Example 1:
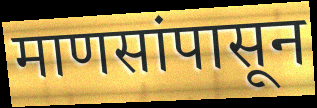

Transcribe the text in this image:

माणसांपासून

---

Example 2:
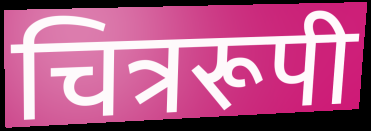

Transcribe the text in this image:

चित्ररूपी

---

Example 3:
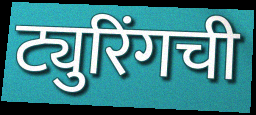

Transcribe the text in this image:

ट्युरिंगची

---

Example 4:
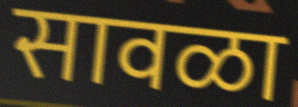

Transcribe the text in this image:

सावळा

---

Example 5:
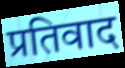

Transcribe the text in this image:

प्रतिवाद